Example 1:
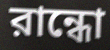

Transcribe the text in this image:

রান্ধো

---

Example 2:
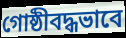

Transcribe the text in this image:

গোষ্ঠীবদ্ধভাবে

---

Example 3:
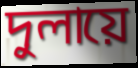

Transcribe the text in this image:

দুলায়ে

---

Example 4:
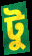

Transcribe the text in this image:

টু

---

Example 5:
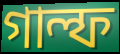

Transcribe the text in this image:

গাল্ফ